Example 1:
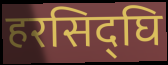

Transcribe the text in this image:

हरसिद्घि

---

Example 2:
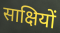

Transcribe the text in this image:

साक्षियों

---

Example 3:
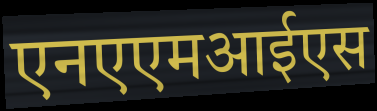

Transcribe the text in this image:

एनएएमआईएस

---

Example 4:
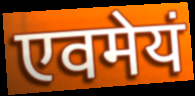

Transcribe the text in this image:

एवमेयं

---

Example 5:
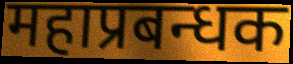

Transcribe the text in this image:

महाप्रबन्धक